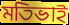
মতিভাই